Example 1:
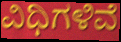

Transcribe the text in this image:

ವಿಧಿಗಳಿವೆ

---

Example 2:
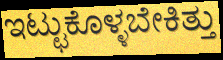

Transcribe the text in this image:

ಇಟ್ಟುಕೊಳ್ಳಬೇಕಿತ್ತು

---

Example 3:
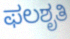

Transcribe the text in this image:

ಫಲಶೃತಿ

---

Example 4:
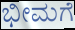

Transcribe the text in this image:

ಭೀಮಗೆ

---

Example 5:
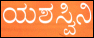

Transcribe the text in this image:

ಯಶಸ್ವಿನಿ